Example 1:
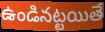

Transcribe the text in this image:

ఉండినట్టయితే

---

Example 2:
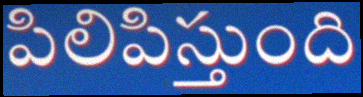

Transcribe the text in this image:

పిలిపిస్తుంది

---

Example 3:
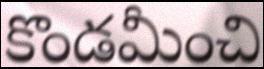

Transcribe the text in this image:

కొండమీంచి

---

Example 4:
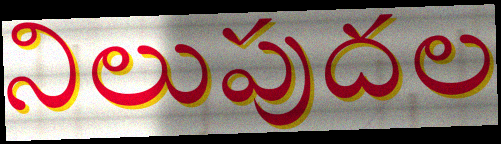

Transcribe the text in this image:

నిలుపుదల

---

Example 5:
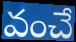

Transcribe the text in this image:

వంచే